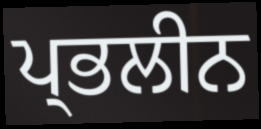
ਪ੍ਭਲੀਨ